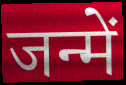
जन्में